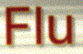
Flu